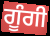
ਗੂੰਗੀ